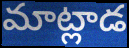
మాట్లాడ